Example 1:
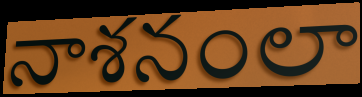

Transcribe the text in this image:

నాశనంలా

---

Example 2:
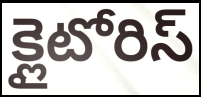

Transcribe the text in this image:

క్లైటోరిస్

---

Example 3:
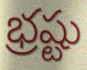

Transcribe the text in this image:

భ్రష్టు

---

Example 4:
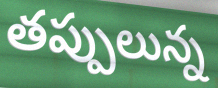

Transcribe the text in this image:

తప్పులున్న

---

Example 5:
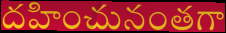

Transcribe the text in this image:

దహించునంతగా